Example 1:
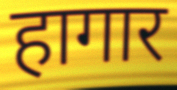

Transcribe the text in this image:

हागार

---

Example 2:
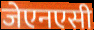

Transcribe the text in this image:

जेएनएसी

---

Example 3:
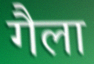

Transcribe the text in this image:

गैला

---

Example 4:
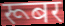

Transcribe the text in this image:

रूबर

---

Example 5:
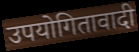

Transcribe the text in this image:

उपयोगितावादी